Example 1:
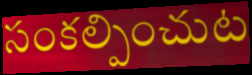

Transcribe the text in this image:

సంకల్పించుట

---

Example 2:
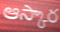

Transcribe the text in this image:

ఆస్కార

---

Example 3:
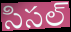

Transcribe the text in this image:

సిసల్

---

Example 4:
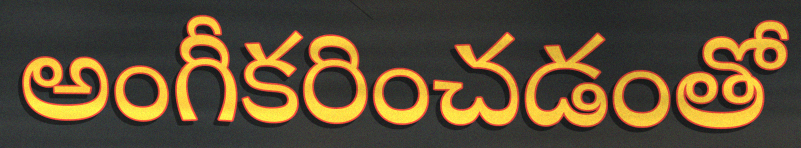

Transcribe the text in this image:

అంగీకరించడంతో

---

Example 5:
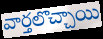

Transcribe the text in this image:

వార్తలొచ్చాయి